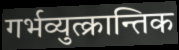
गर्भव्युत्क्रान्तिक